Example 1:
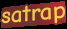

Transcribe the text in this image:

satrap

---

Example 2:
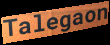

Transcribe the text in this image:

Talegaon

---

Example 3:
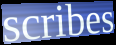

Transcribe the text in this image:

scribes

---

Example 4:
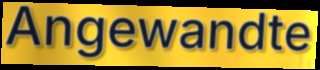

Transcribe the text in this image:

Angewandte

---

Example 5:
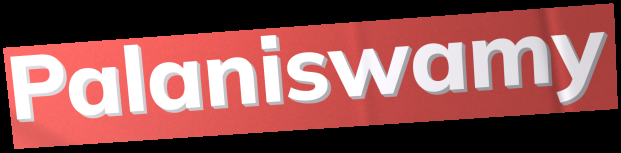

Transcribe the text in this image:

Palaniswamy